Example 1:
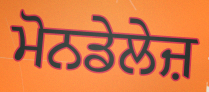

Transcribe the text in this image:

ਮੋਨਡੇਲੇਜ਼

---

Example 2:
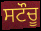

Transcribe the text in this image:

ਸਟੌਚੂ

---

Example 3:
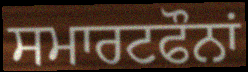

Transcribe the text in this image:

ਸਮਾਰਟਫੌਨਾਂ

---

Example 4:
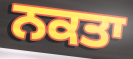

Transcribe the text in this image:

ਨਕਤਾ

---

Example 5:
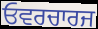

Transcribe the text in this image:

ਓਵਰਚਾਰਜ